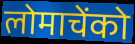
लोमाचेंको